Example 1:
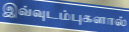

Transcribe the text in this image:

இவ்வுடம்புகளால்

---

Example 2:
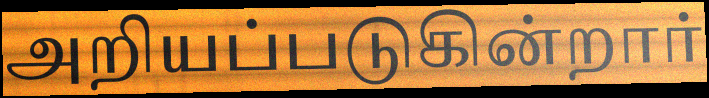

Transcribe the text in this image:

அறியப்படுகின்றார்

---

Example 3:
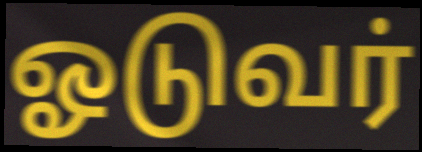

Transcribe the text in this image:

ஓடுவர்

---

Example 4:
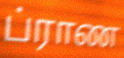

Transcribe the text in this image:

ப்ராண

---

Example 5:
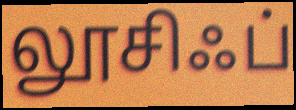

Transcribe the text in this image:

லூசிஃப்